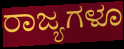
ರಾಜ್ಯಗಳೂ